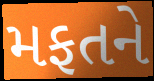
મફતને